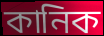
কানিক